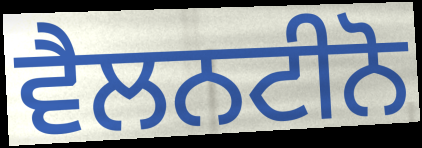
ਵੈਲਨਟੀਨੋ